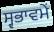
ਸ੍ਵਭਾਵਮੇਂ